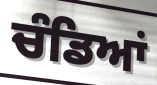
ਚੰਡਿਆਂ